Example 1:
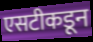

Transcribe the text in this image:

एसटीकडून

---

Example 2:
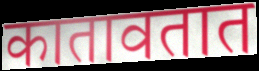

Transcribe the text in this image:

कातावतात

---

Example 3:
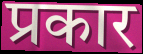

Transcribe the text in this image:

प्रकार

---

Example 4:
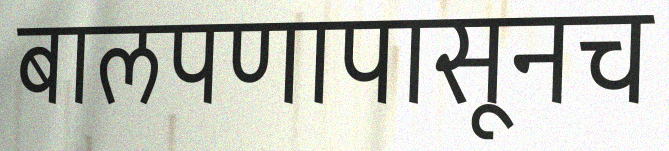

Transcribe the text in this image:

बालपणापासूनच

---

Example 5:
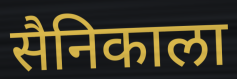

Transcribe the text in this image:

सैनिकाला